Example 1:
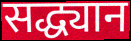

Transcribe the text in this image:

सद्ध्यान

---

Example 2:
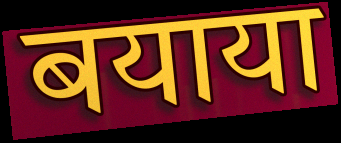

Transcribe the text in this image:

बयाया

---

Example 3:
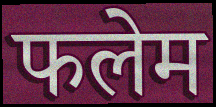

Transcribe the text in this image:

फलेम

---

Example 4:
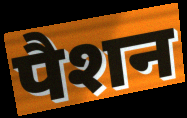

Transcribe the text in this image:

पैशन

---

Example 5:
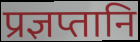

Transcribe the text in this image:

प्रज्ञप्तानि